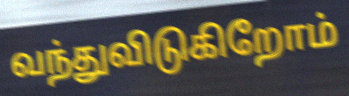
வந்துவிடுகிறோம்